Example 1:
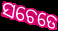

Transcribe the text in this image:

ସଚେତେ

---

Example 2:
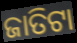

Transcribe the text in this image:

ଜାତିଟା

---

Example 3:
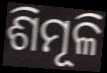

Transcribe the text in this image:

ଶିମୂଳି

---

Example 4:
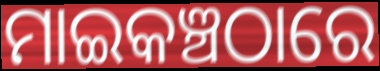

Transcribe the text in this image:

ମାଇକଞ୍ଚଠାରେ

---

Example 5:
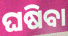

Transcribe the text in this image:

ଘଷିବା